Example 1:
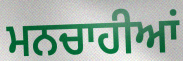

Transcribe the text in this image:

ਮਨਚਾਹੀਆਂ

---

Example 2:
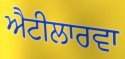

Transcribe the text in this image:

ਐਟੀਲਾਰਵਾ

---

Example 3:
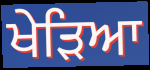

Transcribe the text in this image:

ਖੇੜਿਆ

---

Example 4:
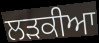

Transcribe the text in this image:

ਲੜਕੀਆ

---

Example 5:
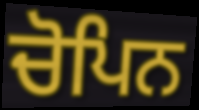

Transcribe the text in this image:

ਚੋਪਿਨ